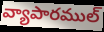
వ్యాపారముల్